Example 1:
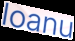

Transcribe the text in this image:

loanu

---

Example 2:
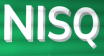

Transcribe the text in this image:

NISQ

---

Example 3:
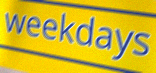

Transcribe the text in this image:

weekdays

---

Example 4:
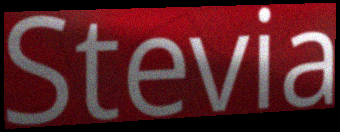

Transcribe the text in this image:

Stevia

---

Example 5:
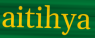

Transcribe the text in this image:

aitihya